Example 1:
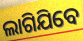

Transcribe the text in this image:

ଲାଗିଯିବେ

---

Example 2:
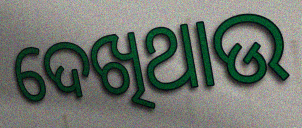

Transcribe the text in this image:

ଦେଖିଥାଉ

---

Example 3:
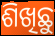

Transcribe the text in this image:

ଶିଖିଛୁ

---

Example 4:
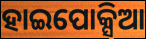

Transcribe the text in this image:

ହାଇପୋକ୍ସିଆ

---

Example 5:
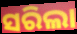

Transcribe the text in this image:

ସରିଲା